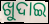
ଖୁଦାଇ